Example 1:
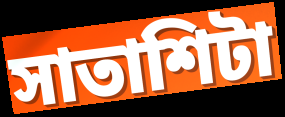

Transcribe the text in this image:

সাতাশিটা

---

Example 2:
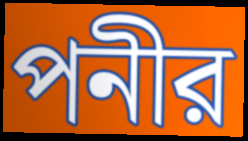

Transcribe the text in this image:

পনীর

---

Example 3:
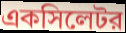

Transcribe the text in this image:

একসিলেটর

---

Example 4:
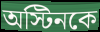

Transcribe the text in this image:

অস্টিনকে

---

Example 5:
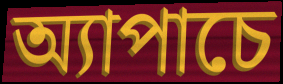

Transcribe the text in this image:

অ্যাপাচে